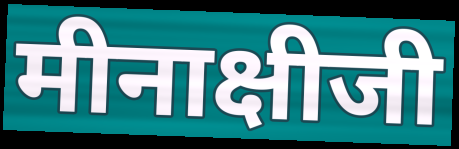
मीनाक्षीजी